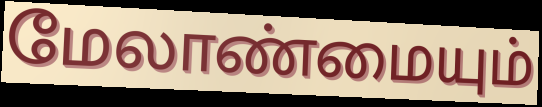
மேலாண்மையும்